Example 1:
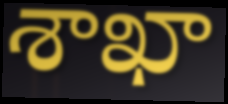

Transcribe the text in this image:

శాఖా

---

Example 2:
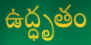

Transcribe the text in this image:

ఉద్ధృతం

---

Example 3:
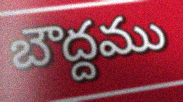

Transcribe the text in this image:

బౌద్దము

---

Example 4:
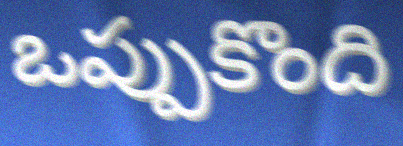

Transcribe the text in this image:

ఒప్పుకొంది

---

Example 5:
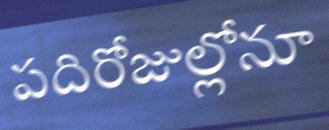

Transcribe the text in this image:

పదిరోజుల్లోనూ